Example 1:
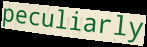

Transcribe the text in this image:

peculiarly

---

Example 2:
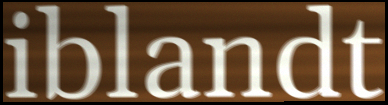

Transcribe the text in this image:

iblandt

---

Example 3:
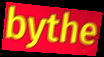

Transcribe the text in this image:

bythe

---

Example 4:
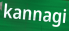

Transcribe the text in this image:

kannagi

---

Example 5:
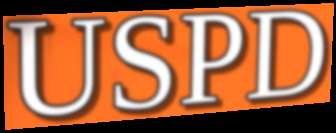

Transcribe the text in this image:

USPD